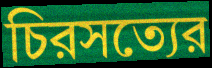
চিরসত্যের